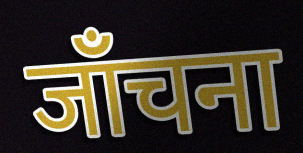
जाँचना